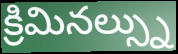
క్రిమినల్స్ను